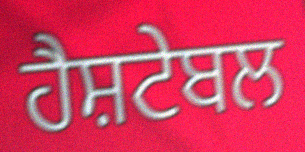
ਹੈਸ਼ਟੇਬਲ